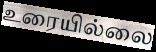
உரையில்லை